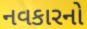
નવકારનો